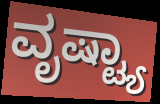
ವೃಷ್ಟ್ಯಾ